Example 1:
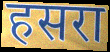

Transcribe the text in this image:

हसरा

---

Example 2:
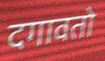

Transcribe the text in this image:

दगावतो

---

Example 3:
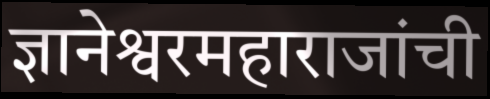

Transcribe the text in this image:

ज्ञानेश्वरमहाराजांची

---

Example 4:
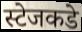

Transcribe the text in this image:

स्टेजकडे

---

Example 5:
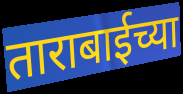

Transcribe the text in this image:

ताराबाईच्या